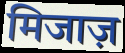
मिजाज़